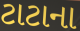
ટાટાના